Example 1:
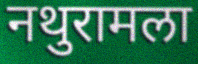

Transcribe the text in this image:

नथुरामला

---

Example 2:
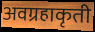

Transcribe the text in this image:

अवग्रहाकृती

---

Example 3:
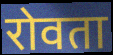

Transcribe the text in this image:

रोवता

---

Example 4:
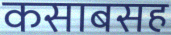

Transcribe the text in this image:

कसाबसह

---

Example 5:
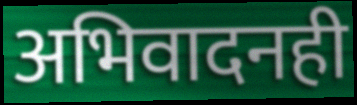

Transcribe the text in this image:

अभिवादनही